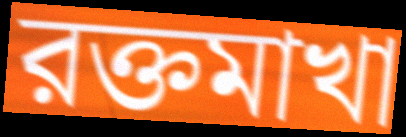
রক্তমাখা